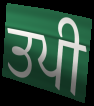
ਤਪੀ